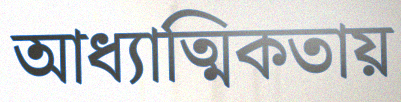
আধ্যাত্মিকতায়